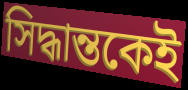
সিদ্ধান্তকেই